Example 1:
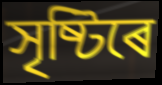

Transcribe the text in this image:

সৃষ্টিৰে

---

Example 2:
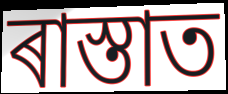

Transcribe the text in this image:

ৰাস্তাত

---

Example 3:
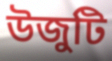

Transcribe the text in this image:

উজুটি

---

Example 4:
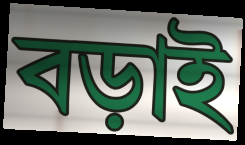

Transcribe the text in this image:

বড়াই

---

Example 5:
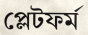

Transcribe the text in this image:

প্লেটফৰ্ম